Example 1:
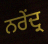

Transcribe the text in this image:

ਨਰੇਂਦ੍ਰ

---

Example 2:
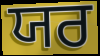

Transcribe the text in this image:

ਯਰ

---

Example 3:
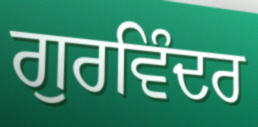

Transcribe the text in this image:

ਗੁਰਵਿੰਦਰ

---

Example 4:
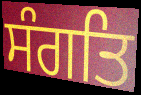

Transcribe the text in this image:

ਸੰਗਤਿ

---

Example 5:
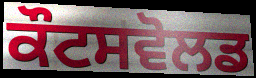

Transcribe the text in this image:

ਕੌਟਸਵੋਲਡ